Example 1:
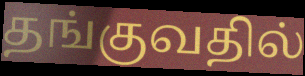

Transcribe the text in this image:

தங்குவதில்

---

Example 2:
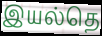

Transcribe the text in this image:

இயல்தெ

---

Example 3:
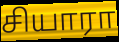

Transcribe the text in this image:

சியாரா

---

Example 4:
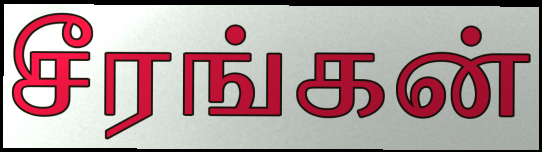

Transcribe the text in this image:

சீரங்கன்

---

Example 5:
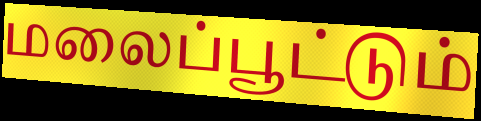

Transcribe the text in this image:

மலைப்பூட்டும்